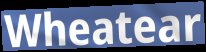
Wheatear